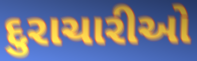
દુરાચારીઓ